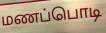
மணப்பொடி